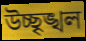
উচ্ছৃঙ্খল